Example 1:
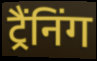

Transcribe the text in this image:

ट्रैंनिंग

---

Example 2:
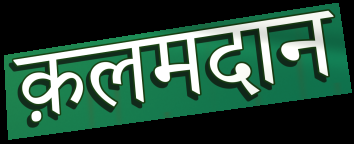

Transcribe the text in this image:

क़लमदान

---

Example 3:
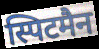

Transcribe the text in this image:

स्पिटमैन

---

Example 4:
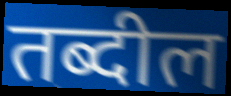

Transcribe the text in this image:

तब्दील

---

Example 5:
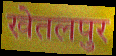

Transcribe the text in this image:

खेतलपुर